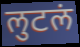
लुटलं